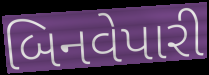
બિનવેપારી